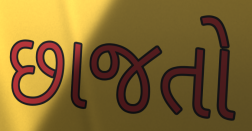
છાજતો